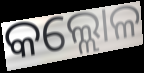
କଲ୍ଲୋଳ